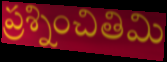
ప్రశ్నించితిమి